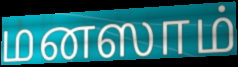
மனஸாம்